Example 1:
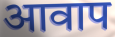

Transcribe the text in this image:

आवाप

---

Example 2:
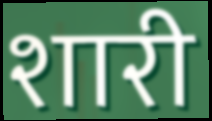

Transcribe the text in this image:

शारी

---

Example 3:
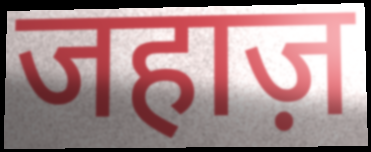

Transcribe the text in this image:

जहाज़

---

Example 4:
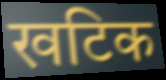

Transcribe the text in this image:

खटिक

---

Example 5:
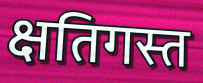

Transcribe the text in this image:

क्षतिगस्त